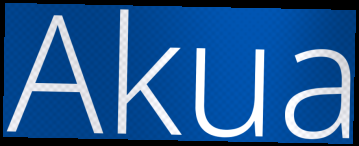
Akua